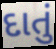
દાતું